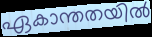
ഏകാന്തതയിൽ